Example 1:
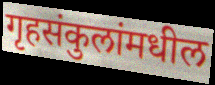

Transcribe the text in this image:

गृहसंकुलांमधील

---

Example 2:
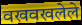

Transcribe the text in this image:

वखवखलेले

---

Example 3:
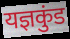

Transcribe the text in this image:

यज्ञकुंड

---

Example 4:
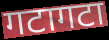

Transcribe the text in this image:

गटागटा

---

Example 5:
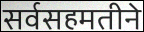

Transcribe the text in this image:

सर्वसहमतीने